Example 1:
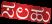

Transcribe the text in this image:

ಸಲಹು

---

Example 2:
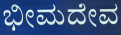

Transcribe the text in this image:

ಭೀಮದೇವ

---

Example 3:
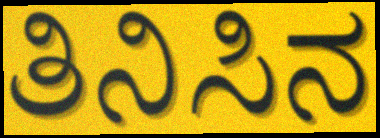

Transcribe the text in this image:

ತಿನಿಸಿನ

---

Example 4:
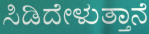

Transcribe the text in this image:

ಸಿಡಿದೇಳುತ್ತಾನೆ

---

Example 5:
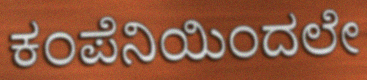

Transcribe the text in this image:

ಕಂಪೆನಿಯಿಂದಲೇ